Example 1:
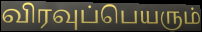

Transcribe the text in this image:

விரவுப்பெயரும்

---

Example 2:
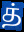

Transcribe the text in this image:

த்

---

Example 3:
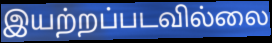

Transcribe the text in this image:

இயற்றப்படவில்லை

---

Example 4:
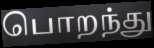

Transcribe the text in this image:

பொறந்து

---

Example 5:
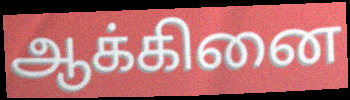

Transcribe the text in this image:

ஆக்கினை